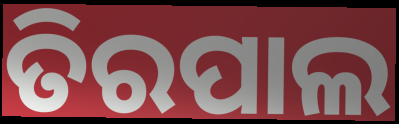
ତିରପାଲ